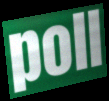
poll